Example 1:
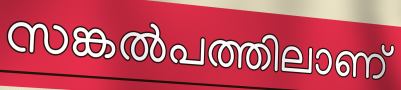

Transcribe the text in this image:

സങ്കൽപത്തിലാണ്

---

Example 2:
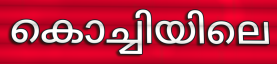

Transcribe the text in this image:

കൊച്ചിയിലെ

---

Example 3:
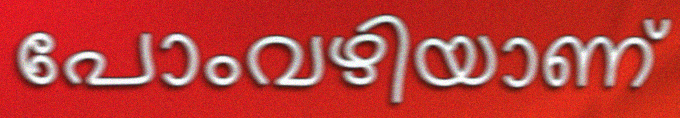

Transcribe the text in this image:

പോംവഴിയാണ്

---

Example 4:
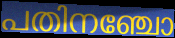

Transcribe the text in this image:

പതിനഞ്ചോ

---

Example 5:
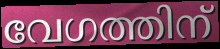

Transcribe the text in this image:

വേഗത്തിന്